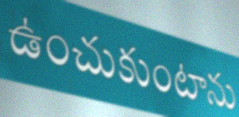
ఉంచుకుంటాను